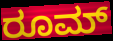
ರೂಮ್